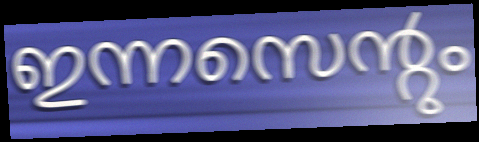
ഇന്നസെന്റും